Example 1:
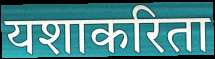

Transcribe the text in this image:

यशाकरिता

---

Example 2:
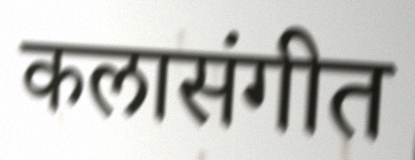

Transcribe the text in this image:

कलासंगीत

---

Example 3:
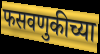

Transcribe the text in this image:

फसवणुकीच्या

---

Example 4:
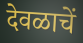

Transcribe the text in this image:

देवळाचें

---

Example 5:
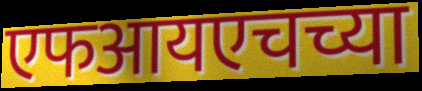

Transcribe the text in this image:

एफआयएचच्या